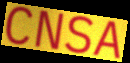
CNSA